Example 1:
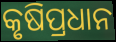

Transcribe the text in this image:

କୃଷିପ୍ରଧାନ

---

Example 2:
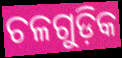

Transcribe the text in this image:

ଚଳଗୁଡ଼ିକ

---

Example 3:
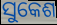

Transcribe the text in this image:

ସୁକେଶ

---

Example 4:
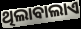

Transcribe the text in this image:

ଥିଲାବାଲାଏ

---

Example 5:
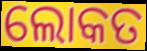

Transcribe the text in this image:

ଲୋକତ